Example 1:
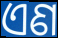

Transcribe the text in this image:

ଏଣ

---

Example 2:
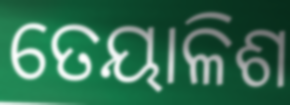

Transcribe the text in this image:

ତେୟାଳିଶ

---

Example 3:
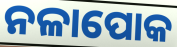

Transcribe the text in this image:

ନଳାପୋକ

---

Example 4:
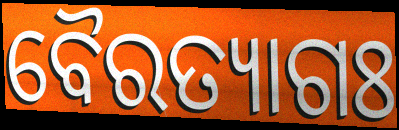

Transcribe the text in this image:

ବୈରତ୍ୟାଗଃ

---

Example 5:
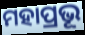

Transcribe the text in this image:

ମହାପ୍ରଭୂ